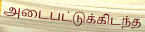
அடைபட்டுக்கிடந்த